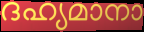
ദഹ്യമാനാ